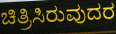
ಚಿತ್ರಿಸಿರುವುದರ